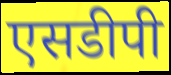
एसडीपी